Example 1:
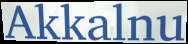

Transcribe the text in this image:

Akkalnu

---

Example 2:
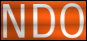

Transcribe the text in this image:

NDO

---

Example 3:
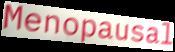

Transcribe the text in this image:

Menopausal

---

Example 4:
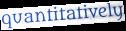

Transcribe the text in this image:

quantitatively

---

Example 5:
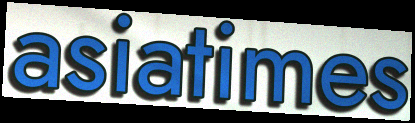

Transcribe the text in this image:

asiatimes